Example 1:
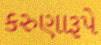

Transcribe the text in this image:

કરુણારૂપે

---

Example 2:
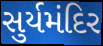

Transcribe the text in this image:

સુર્યમંદિર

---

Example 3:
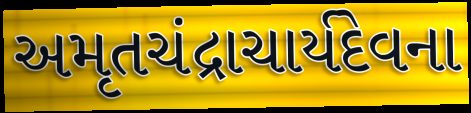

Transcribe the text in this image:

અમૃતચંદ્રાચાર્યદેવના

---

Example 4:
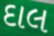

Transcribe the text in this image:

દાલ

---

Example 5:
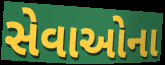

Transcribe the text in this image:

સેવાઓના